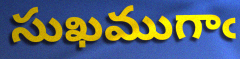
సుఖముగాఁ